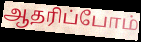
ஆதரிப்போம்